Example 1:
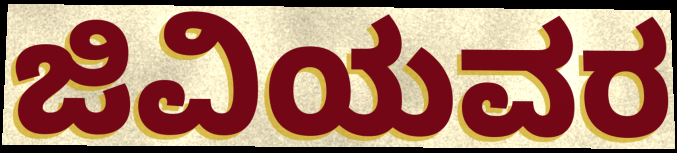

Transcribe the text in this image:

ಜಿವಿಯವರ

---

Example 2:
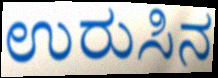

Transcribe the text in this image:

ಉರುಸಿನ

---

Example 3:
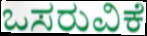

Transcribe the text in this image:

ಒಸರುವಿಕೆ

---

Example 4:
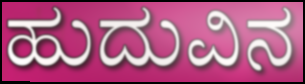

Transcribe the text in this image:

ಹುದುವಿನ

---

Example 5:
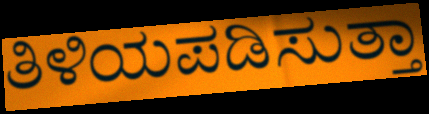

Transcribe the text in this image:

ತಿಳಿಯಪಡಿಸುತ್ತಾ